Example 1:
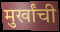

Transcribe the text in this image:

मुर्खांची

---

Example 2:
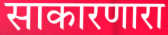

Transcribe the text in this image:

साकारणारा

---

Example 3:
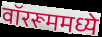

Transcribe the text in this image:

वॉररूममध्ये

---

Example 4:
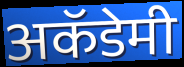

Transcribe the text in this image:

अकॅडेमी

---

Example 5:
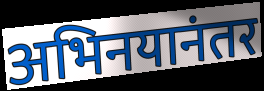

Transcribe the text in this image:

अभिनयानंतर